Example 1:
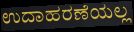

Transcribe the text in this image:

ಉದಾಹರಣೆಯಲ್ಲ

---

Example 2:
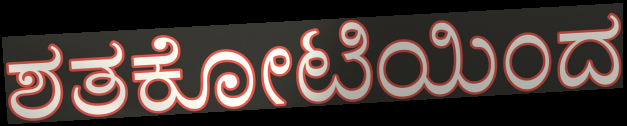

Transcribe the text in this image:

ಶತಕೋಟಿಯಿಂದ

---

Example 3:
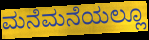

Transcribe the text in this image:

ಮನೆಮನೆಯಲ್ಲೂ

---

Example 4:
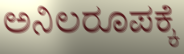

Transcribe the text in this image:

ಅನಿಲರೂಪಕ್ಕೆ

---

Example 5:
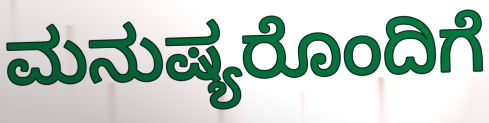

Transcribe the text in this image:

ಮನುಷ್ಯರೊಂದಿಗೆ